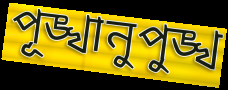
পূঙ্খানুপুঙ্খ